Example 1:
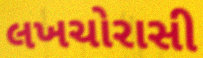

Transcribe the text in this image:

લખચોરાસી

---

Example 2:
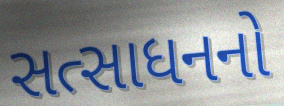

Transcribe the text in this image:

સત્સાધનનો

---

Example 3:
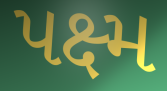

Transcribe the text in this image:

પક્ષ્મ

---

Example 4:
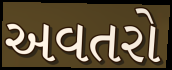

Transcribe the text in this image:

અવતરો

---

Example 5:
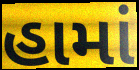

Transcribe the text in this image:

હામાં